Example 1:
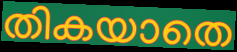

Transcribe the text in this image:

തികയാതെ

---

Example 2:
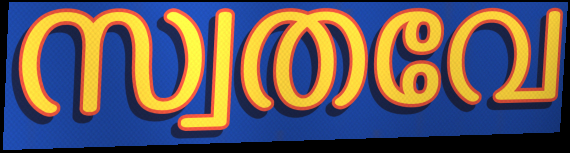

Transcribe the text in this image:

സ്വതവേ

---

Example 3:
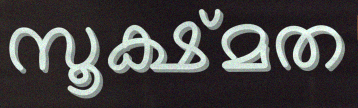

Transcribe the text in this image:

സൂക്ഷ്മത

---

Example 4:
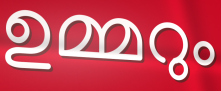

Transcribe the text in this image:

ഉമ്മറും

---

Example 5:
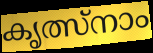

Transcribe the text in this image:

കൃത്സ്നാം